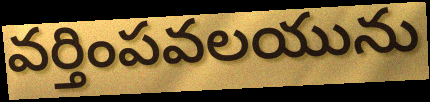
వర్తింపవలయును